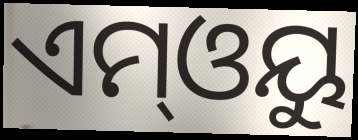
ଏମ୍ଓୟୁ